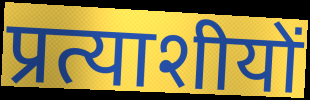
प्रत्याशीयों